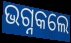
ଭଗ୍ନକଲେ